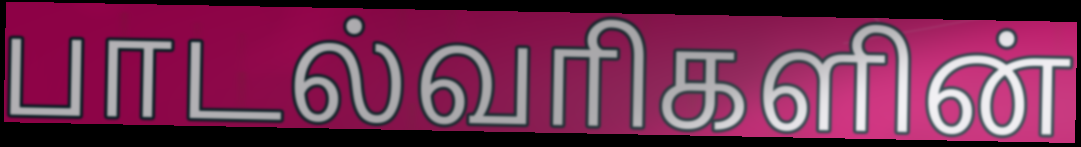
பாடல்வரிகளின்